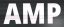
AMP